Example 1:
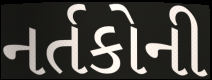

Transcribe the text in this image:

નર્તકોની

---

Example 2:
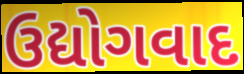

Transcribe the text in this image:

ઉદ્યોગવાદ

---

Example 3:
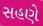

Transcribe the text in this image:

સહણે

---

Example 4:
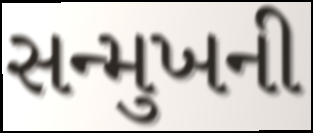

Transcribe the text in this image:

સન્મુખની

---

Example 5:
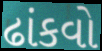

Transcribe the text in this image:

ઢાંકવો